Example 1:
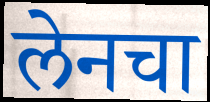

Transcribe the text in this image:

लेनचा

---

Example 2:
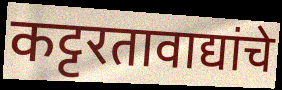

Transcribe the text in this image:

कट्टरतावाद्यांचे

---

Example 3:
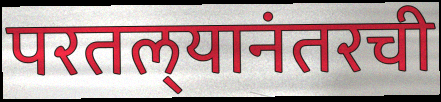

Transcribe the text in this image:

परतल्यानंतरची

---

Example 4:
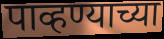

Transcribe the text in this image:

पाव्हण्याच्या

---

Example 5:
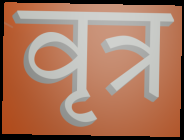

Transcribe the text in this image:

वृत्र